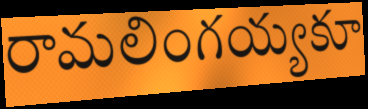
రామలింగయ్యకూ